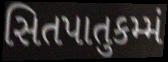
સિતપાતુકમ્મં